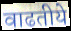
वाढतीये